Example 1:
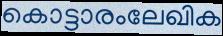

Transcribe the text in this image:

കൊട്ടാരംലേഖിക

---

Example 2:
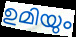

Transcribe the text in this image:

ഉമിയും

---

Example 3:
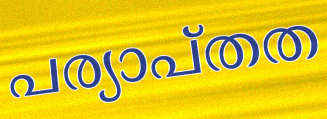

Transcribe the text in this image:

പര്യാപ്തത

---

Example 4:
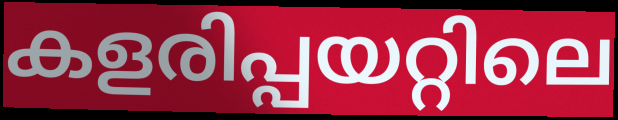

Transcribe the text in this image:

കളരിപ്പയറ്റിലെ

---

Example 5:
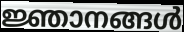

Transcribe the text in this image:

ജ്ഞാനങ്ങൾ